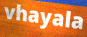
vhayala